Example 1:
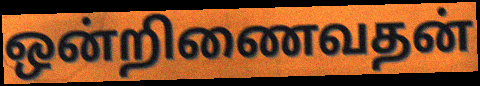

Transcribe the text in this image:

ஒன்றிணைவதன்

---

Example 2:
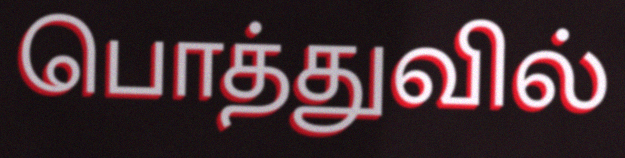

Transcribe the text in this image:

பொத்துவில்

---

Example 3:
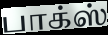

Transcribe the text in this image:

பாக்ஸ்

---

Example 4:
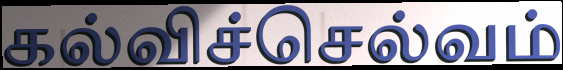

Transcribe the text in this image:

கல்விச்செல்வம்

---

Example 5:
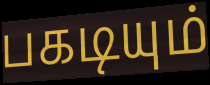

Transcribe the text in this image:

பகடியும்